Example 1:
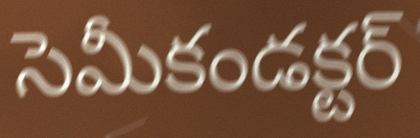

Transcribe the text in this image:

సెమీకండక్టర్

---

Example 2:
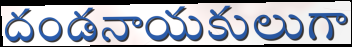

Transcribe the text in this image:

దండనాయకులుగా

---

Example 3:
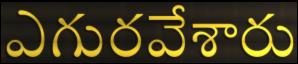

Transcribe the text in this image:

ఎగురవేశారు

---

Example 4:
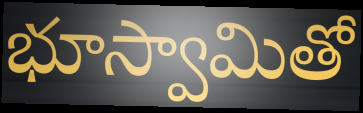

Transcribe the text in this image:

భూస్వామితో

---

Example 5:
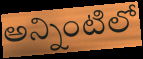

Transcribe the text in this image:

అన్నింటిలో